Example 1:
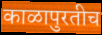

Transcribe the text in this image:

काळापुरतीच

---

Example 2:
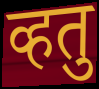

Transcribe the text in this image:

व्हतु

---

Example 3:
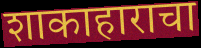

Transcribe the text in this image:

शाकाहाराचा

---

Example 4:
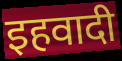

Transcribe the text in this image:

इहवादी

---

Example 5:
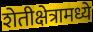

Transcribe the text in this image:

शेतीक्षेत्रामध्ये